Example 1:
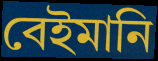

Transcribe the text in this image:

বেইমানি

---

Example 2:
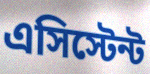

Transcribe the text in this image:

এসিস্টেন্ট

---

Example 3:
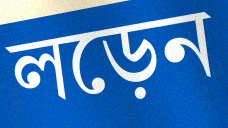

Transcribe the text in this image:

লড়েন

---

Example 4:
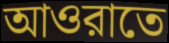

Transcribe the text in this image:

আওরাতে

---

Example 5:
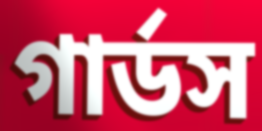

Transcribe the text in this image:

গার্ডস